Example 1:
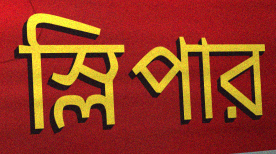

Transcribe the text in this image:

স্লিপার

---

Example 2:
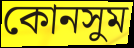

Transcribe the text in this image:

কোনসুম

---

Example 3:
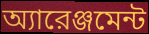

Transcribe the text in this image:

অ্যারেঞ্জমেন্ট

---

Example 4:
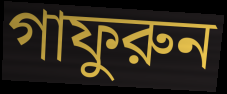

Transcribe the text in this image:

গাফুরুন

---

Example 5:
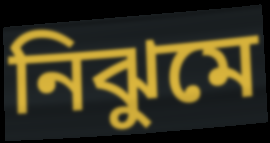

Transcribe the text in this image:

নিঝুমে